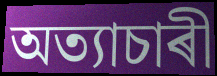
অত্যাচাৰী